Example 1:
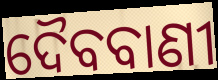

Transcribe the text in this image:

ଦୈବବାଣୀ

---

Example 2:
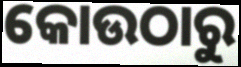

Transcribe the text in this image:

କୋଉଠାରୁ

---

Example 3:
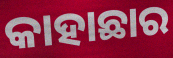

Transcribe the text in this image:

କାହାଛାର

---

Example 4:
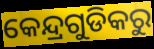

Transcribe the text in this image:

କେନ୍ଦ୍ରଗୁଡିକରୁ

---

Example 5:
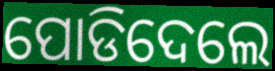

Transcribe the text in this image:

ପୋଡିଦେଲେ